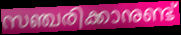
സഞ്ചരിക്കാനുണ്ട്